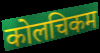
कोलचिकम